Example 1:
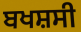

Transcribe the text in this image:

ਬਖਸ਼ਸੀ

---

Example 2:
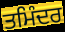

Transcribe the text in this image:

ਤਮਿੰਦਰ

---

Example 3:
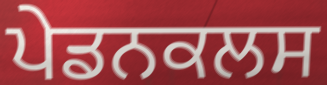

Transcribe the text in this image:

ਪੇਡਨਕਲਸ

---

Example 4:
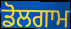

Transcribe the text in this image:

ਡੋਲਗਾਮ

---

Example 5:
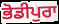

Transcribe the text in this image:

ਭੋਡੀਪੁਰਾ